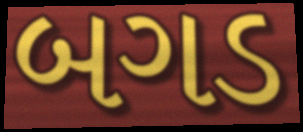
બગડ